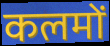
कलमों